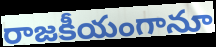
రాజకీయంగానూ